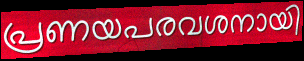
പ്രണയപരവശനായി